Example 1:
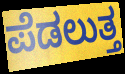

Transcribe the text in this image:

ಪೆಡಲುತ್ತ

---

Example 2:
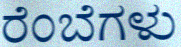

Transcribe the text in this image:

ರೆಂಬೆಗಳು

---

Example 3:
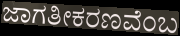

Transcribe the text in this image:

ಜಾಗತೀಕರಣವೆಂಬ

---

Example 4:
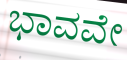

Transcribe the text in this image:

ಭಾವವೇ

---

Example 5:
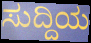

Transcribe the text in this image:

ಸುದ್ದಿಯ